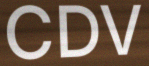
CDV